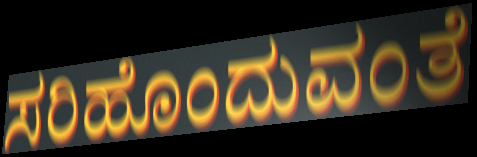
ಸರಿಹೊಂದುವಂತೆ